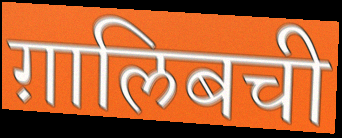
ग़ालिबची